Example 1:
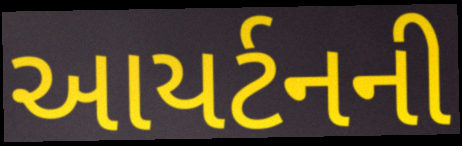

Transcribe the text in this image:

આયર્ટનની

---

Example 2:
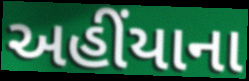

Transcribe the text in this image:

અહીંયાના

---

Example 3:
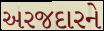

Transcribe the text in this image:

અરજદારને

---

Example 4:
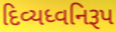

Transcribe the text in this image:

દિવ્યધ્વનિરૂપ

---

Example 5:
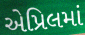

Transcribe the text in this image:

એપ્રિલમાં